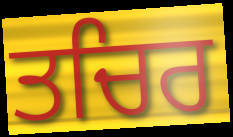
ਤਚਿਰ